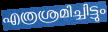
എത്രശ്രമിച്ചിട്ടും